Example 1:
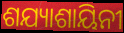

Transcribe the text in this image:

ଶଯ୍ୟାଶାୟିନୀ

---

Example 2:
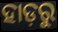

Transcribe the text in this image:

ହାଡ଼ରୁ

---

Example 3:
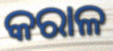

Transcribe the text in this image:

କରାଳ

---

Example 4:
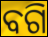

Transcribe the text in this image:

ବଗି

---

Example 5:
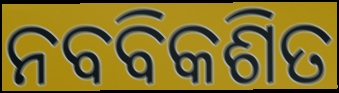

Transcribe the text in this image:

ନବବିକଶିତ